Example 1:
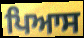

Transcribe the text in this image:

ਪਿਆਸ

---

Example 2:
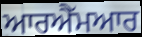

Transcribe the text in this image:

ਆਰਐੱਮਆਰ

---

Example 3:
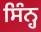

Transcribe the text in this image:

ਸਿੰਨ੍ਹ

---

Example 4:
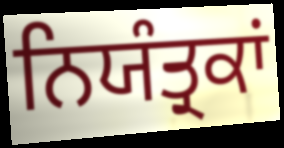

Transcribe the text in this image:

ਨਿਯੰਤ੍ਰਕਾਂ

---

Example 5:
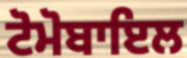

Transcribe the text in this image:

ਟੋਮੋਬਾਇਲ